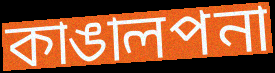
কাঙালপনা